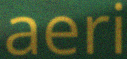
aeri